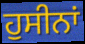
ਹੁਸੀਨਾਂ